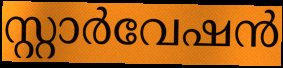
സ്റ്റാർവേഷൻ